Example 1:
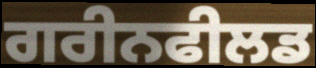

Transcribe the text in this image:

ਗਰੀਨਫੀਲਡ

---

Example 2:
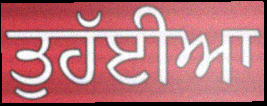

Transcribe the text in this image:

ਤੁਹੱਈਆ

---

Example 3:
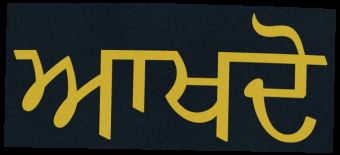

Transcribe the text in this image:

ਆਖਦੋ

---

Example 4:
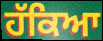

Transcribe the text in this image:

ਹੱਕਿਆ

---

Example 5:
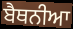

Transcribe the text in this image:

ਬੈਥਨੀਆ